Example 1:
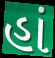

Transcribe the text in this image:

હાં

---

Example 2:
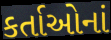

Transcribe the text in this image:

કર્તાઓનાં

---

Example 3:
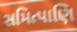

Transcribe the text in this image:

સમિત્પાણિ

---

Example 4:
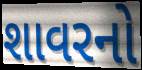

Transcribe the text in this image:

શાવરનો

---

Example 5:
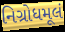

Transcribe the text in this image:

નિગ્રોધમૂલં